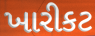
ખારીકટ